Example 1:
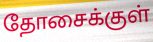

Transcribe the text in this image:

தோசைக்குள்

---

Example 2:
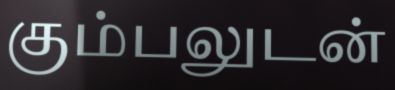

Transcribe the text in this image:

கும்பலுடன்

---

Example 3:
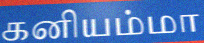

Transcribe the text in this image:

கனியம்மா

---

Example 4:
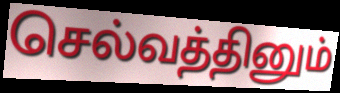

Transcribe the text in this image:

செல்வத்தினும்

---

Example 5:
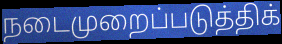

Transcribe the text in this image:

நடைமுறைப்படுத்திக்